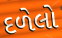
દળેલો